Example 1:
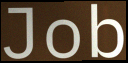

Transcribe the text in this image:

Job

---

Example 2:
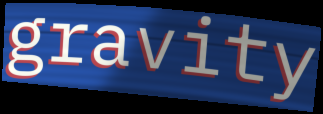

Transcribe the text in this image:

gravity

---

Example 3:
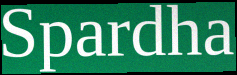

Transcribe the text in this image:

Spardha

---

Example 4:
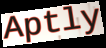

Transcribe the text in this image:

Aptly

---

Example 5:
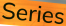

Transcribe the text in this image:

Series